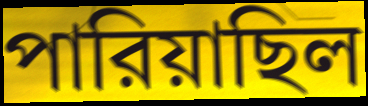
পারিয়াছিল